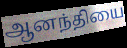
ஆனந்தியை